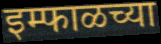
इम्फाळच्या